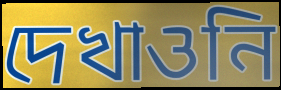
দেখাওনি